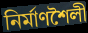
নির্মাণশৈলী